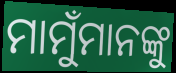
ମାମୁଁମାନଙ୍କୁ